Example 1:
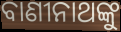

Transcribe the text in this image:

ବାଣୀନାଥଙ୍କୁ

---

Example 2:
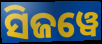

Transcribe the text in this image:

ସିଜୱେ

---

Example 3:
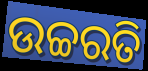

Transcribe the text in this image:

ଉଚ୍ଚରତି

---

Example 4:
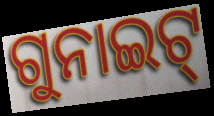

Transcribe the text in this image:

ଗୁନାଇଟ୍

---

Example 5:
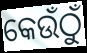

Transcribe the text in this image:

କେଉଁଠୁଁ